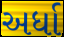
અર્ધા